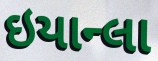
ઇયાન્લા